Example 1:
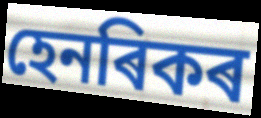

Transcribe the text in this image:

হেনৰিকৰ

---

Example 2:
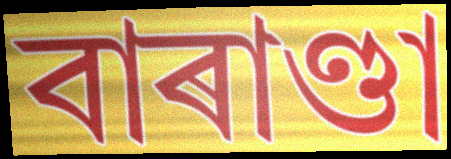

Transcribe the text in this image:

বাৰাণ্ডা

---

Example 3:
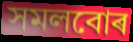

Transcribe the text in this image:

সমলবোৰ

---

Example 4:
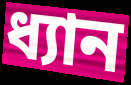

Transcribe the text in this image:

ধ্যান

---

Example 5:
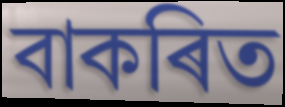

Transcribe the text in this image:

বাকৰিত